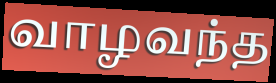
வாழவந்த